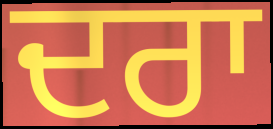
ਦਰਾ